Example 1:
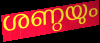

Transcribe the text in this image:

ശണ്ഠയും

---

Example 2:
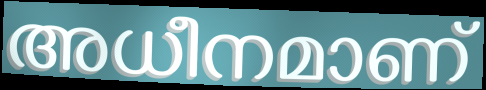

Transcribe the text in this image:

അധീനമാണ്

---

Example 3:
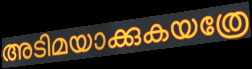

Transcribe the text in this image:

അടിമയാക്കുകയത്രേ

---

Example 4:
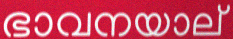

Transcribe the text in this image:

ഭാവനയാല്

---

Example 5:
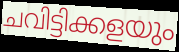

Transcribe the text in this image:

ചവിട്ടിക്കളയും